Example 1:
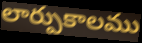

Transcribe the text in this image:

లార్పుకాలము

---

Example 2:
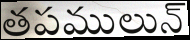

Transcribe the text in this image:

తపములున్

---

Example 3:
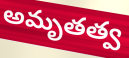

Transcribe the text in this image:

అమృతత్వ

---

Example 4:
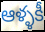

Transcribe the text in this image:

ఆళ్ళకీ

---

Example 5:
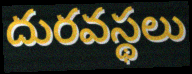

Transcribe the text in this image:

దురవస్థలు